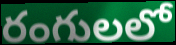
రంగులలో